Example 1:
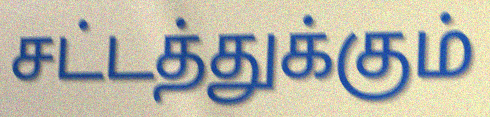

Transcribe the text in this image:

சட்டத்துக்கும்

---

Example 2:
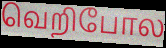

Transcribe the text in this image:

வெறிபோல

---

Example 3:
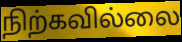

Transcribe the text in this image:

நிற்கவில்லை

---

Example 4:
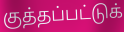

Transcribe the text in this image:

குத்தப்பட்டுக்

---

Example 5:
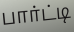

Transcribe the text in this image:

பார்ட்டி